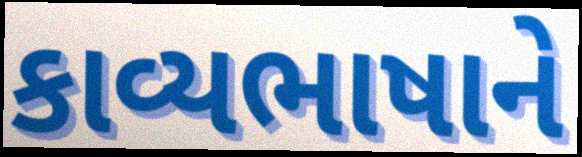
કાવ્યભાષાને